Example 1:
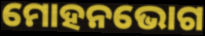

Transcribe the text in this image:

ମୋହନଭୋଗ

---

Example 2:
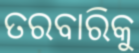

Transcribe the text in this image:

ତରବାରିକୁ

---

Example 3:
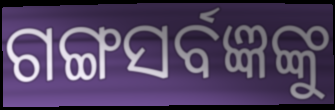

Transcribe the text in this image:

ଗଙ୍ଗସର୍ବଜ୍ଞଙ୍କୁ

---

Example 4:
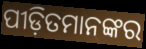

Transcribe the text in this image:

ପୀଡ଼ିତମାନଙ୍କର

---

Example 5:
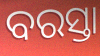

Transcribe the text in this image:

ବରସ୍ତା